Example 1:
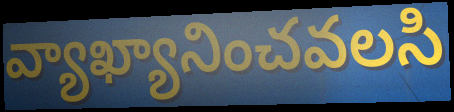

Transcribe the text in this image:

వ్యాఖ్యానించవలసి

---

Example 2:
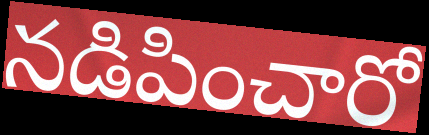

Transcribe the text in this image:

నడిపించారో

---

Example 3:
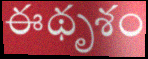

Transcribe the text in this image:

ఈథృశం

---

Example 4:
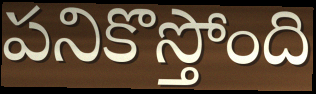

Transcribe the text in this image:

పనికొస్తోంది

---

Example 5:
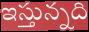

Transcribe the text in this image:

ఇస్తున్నది